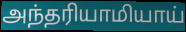
அந்தரியாமியாய்